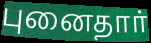
புனைதார்